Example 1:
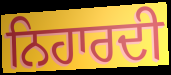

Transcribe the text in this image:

ਨਿਹਾਰਦੀ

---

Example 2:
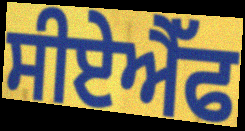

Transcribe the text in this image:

ਸੀਏਐੱਫ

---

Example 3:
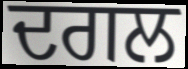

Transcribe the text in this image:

ਦਗਲ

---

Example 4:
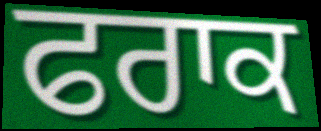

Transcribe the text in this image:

ਫਰਾਕ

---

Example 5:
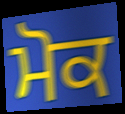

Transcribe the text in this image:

ਮੋਕ